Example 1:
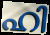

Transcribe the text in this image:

ഹി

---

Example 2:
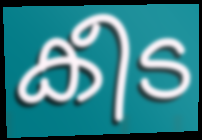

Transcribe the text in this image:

കീട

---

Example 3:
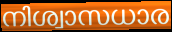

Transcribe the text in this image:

നിശ്വാസധാര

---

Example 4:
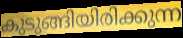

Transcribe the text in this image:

കുടുങ്ങിയിരിക്കുന്ന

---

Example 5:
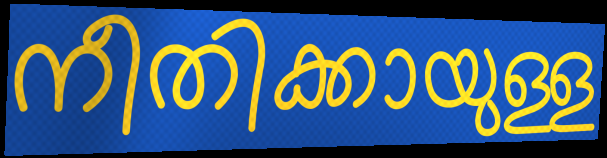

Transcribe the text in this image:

നീതിക്കായുള്ള